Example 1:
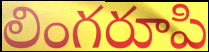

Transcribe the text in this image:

లింగరూపి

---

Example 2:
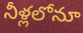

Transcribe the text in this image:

నీళ్లలోనూ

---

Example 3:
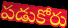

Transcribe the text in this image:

పడుకోరు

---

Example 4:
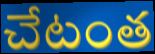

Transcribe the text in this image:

చేటంత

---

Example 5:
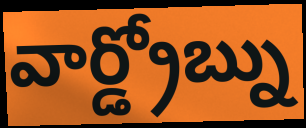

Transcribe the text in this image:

వార్డ్రోబ్ను